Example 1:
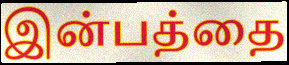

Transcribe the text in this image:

இன்பத்தை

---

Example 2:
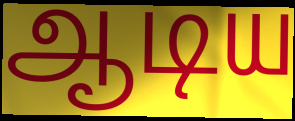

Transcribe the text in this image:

ஆடிய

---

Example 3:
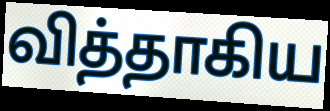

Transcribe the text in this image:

வித்தாகிய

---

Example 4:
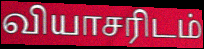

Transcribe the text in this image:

வியாசரிடம்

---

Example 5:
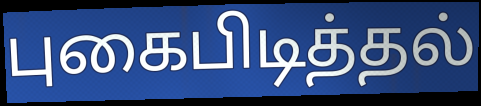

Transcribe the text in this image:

புகைபிடித்தல்